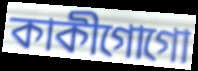
কাকীগোগো